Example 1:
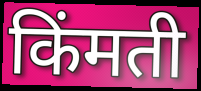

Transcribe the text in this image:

किंमती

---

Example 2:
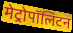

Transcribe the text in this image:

मेट्रोपॉलिटन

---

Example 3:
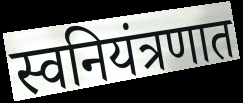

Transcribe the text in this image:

स्वनियंत्रणात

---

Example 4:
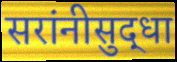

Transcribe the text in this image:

सरांनीसुद्धा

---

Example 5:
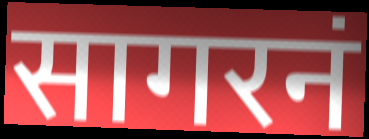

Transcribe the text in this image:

सागरनं